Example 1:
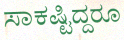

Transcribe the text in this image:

ಸಾಕಷ್ಟಿದ್ದರೂ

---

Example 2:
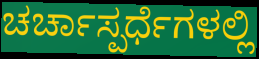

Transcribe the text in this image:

ಚರ್ಚಾಸ್ಪರ್ಧೆಗಳಲ್ಲಿ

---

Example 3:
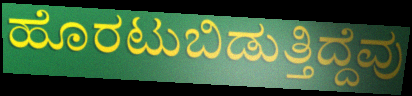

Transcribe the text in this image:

ಹೊರಟುಬಿಡುತ್ತಿದ್ದೆವು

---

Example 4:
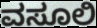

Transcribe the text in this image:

ವಸೂಲಿ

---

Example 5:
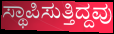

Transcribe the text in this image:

ಸ್ಥಾಪಿಸುತ್ತಿದ್ದವು